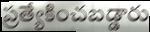
ప్రత్యేకించబడ్డారు